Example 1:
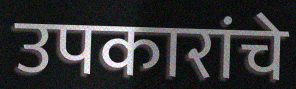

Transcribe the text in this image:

उपकारांचे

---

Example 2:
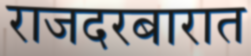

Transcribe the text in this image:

राजदरबारात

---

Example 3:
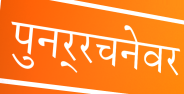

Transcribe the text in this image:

पुनर्रचनेवर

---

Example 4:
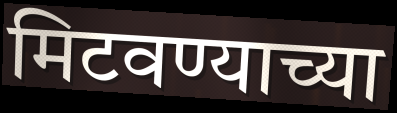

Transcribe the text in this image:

मिटवण्याच्या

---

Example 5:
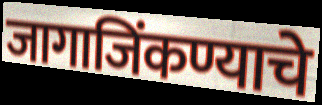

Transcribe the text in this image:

जागाजिंकण्याचे